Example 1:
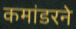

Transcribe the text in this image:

कमांडरने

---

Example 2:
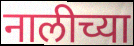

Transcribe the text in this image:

नालीच्या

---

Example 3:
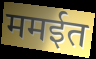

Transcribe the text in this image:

ममईत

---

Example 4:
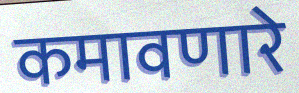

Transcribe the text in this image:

कमावणारे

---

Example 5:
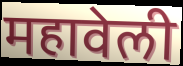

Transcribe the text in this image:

महावेली